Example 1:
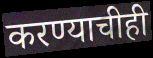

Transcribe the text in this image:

करण्याचीही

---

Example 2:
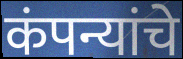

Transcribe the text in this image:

कंपन्यांचे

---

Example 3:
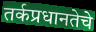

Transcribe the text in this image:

तर्कप्रधानतेचे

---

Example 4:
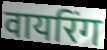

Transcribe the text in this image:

वायरिंग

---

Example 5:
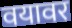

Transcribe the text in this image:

वयावर